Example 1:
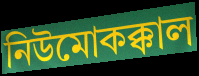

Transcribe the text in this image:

নিউমোকক্কাল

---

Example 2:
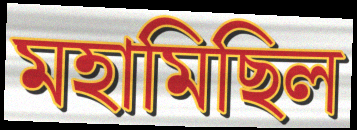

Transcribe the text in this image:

মহামিছিল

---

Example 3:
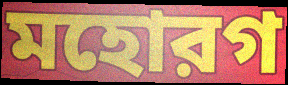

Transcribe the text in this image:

মহোরগ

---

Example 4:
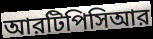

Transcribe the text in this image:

আরটিপিসিআর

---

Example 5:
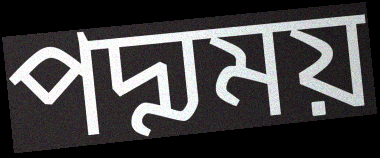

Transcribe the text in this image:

পদ্মময়